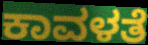
ಕಾವಳತೆ